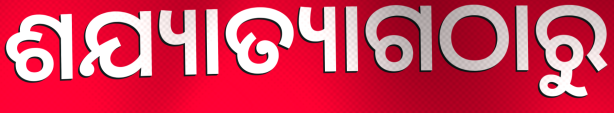
ଶଯ୍ୟାତ୍ୟାଗଠାରୁ